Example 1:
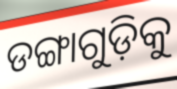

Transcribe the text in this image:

ଡଙ୍ଗାଗୁଡ଼ିକୁ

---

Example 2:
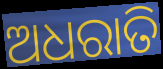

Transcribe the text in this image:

ଅଧରାତି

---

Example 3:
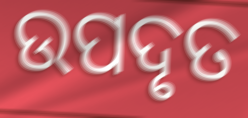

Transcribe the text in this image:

ଉପଦୃତ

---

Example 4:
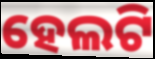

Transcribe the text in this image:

ହେଲଟି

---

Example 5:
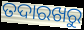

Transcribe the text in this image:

ତଦାରଖରୁ